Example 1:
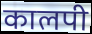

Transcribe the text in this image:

कालपी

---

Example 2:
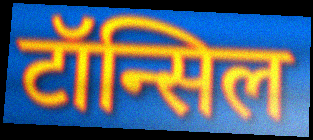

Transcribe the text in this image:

टॉन्सिल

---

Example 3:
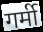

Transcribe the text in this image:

गर्मी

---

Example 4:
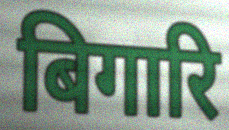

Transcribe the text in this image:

बिगारि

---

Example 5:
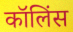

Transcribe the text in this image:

कॉलिंस